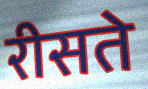
रीसते